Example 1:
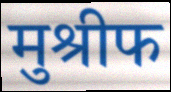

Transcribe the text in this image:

मुश्रीफ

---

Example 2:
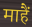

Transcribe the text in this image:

माहैं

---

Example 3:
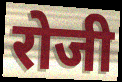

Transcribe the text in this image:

रोजी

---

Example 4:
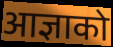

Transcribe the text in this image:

आज्ञाको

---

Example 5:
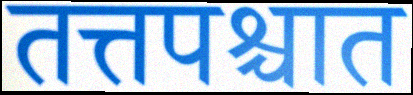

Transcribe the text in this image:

तत्तपश्चात